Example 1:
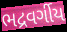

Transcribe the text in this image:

ભદ્રવર્ગીય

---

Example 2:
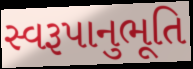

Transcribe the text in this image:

સ્વરૂપાનુભૂતિ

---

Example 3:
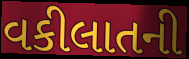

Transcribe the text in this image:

વકીલાતની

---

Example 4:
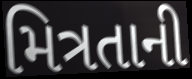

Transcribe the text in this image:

મિત્રતાની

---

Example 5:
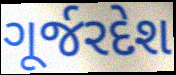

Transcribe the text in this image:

ગૂર્જરદેશ